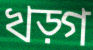
খড়্গ